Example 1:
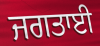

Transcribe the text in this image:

ਜਗਤਾਈ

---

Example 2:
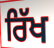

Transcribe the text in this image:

ਰਿੱਖ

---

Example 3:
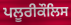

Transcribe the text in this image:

ਪਲੂਰੀਕੌਲਿਸ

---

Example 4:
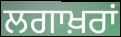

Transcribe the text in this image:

ਲਗਾਖ਼ਰਾਂ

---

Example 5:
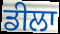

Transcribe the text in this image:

ਡੀਲਾ